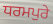
ਧਰਮਪੁਰੇ